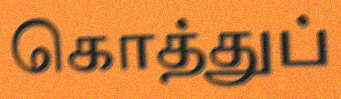
கொத்துப்